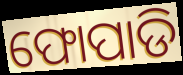
ଫୋପାଡି